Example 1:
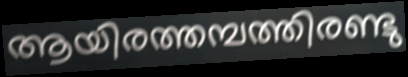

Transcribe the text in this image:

ആയിരത്തമ്പത്തിരണ്ടു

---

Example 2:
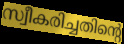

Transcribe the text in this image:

സ്വീകരിച്ചതിന്റെ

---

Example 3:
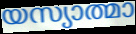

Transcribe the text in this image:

യസ്യാത്മാ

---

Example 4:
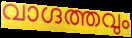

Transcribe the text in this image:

വാഗ്ദത്തവും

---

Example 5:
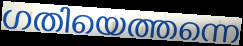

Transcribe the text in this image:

ഗതിയെത്തന്നെ